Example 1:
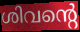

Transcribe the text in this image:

ശിവന്റെ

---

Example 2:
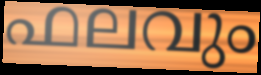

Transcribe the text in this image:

ഫലവും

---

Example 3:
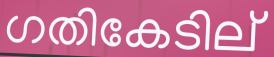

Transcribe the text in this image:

ഗതികേടില്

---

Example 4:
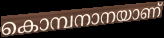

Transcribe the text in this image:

കൊമ്പനാനയാണ്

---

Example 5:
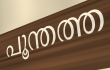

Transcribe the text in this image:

പൂന്തത്ത